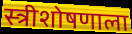
स्त्रीशोषणाला